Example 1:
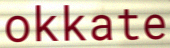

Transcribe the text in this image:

okkate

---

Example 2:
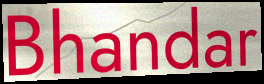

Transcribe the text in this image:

Bhandar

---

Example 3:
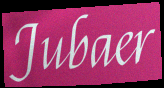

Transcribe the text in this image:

Jubaer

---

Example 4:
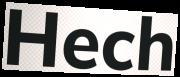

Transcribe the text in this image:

Hech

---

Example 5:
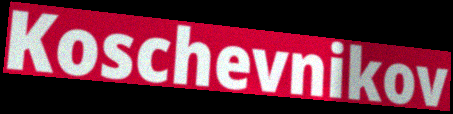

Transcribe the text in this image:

Koschevnikov